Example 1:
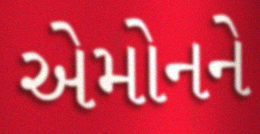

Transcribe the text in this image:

એમોનને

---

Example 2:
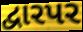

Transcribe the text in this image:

દ્વારપર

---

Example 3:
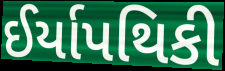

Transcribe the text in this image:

ઈર્યાપથિકી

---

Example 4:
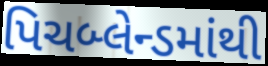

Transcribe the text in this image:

પિચબ્લેન્ડમાંથી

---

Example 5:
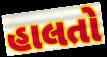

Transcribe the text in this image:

હાલતો